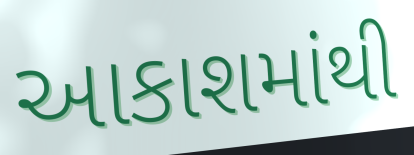
આકાશમાંથી